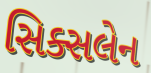
સિક્સલેન